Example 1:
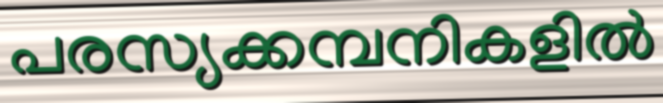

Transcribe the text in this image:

പരസ്യക്കമ്പനികളിൽ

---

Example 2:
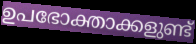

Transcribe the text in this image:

ഉപഭോക്താക്കളുണ്ട്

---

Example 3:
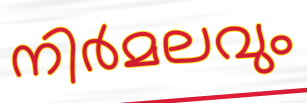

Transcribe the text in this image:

നിർമലവും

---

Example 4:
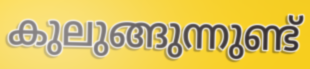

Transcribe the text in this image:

കുലുങ്ങുന്നുണ്ട്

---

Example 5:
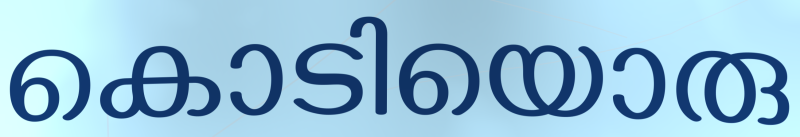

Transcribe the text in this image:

കൊടിയൊരു